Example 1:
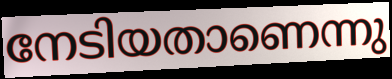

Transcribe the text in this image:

നേടിയതാണെന്നു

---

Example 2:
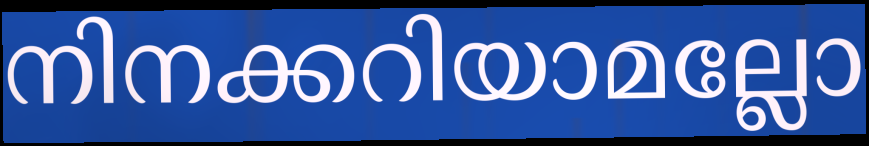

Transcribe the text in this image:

നിനക്കറിയാമല്ലോ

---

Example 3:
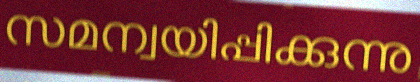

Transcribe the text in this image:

സമന്വയിപ്പിക്കുന്നു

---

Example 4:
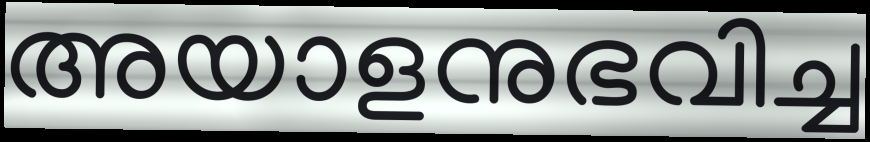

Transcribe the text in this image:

അയാളനുഭവിച്ച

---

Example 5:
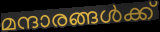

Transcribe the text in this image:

മന്ദാരങ്ങൾക്ക്